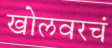
खोलवरचं